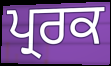
ਪ੍ਰਰਕ